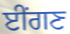
ਈਂਗਣ